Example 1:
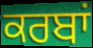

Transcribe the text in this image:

ਕਰਬਾਂ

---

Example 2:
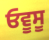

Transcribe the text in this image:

ਓਵੂਸੂ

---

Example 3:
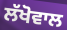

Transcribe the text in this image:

ਲੱਖੋਵਾਲ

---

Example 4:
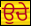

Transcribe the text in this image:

ਉਚੇ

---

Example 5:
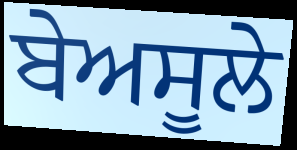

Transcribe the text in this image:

ਬੇਅਸੂਲੇ